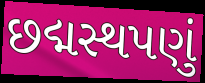
છદ્મસ્થપણું